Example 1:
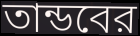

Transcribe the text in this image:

তান্ডবের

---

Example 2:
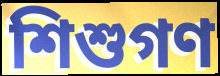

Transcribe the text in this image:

শিশুগণ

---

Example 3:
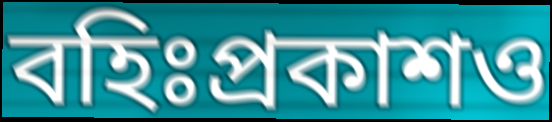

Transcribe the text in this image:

বহিঃপ্রকাশও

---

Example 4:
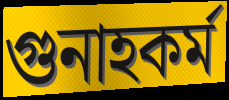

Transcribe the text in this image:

গুনাহকর্ম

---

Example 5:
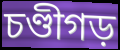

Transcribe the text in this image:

চণ্ডীগড়